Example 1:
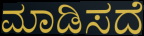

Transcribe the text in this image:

ಮಾಡಿಸದೆ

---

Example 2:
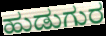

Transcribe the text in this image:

ಹುಡುಗುರ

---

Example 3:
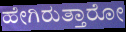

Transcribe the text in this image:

ಹೇಗಿರುತ್ತಾರೋ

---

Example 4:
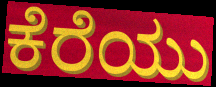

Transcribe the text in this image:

ಕೆರೆಯು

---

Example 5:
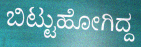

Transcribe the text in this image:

ಬಿಟ್ಟುಹೋಗಿದ್ದ